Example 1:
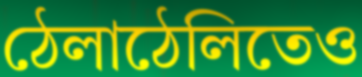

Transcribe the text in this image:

ঠেলাঠেলিতেও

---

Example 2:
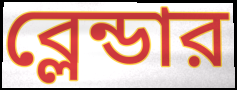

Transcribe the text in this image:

ব্লেন্ডার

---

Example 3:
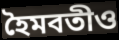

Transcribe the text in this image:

হৈমবতীও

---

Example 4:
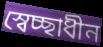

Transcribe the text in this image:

স্বেচ্ছাধীন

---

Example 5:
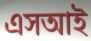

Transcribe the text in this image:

এসআই